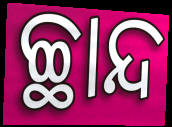
ଚ୍ଛାନ୍ଦ